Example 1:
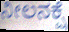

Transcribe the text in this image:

ನೀಲನಕ್ಷೆ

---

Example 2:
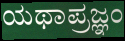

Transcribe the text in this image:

ಯಥಾಪ್ರಜ್ಞಂ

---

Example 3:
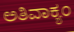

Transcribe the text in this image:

ಅತಿವಾಕ್ಯಂ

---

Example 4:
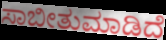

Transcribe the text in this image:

ಸಾಬೀತುಮಾಡಿದೆ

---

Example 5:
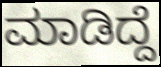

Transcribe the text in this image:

ಮಾಡಿದ್ದೆ